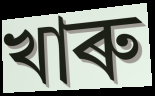
খাৰু